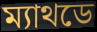
ম্যাথডে